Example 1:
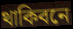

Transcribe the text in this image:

থাকিবনে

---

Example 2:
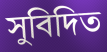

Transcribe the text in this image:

সুবিদিত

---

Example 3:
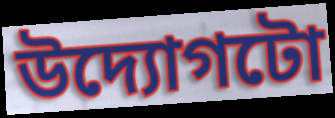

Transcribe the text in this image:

উদ্যোগটো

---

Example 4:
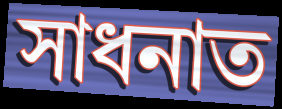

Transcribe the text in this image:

সাধনাত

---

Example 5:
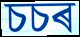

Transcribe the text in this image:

চচৰ